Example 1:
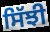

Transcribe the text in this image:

ਸਿੱਝੀ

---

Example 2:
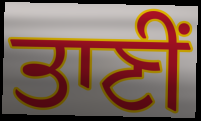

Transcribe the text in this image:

ਤਾਣੀਂ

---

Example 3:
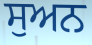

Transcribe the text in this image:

ਸੁਅਨ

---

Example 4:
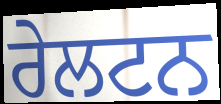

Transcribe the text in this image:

ਰੇਲਟਨ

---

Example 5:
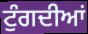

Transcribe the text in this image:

ਟੁੰਗਦੀਆਂ